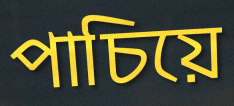
পাচিয়ে